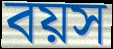
বয়স